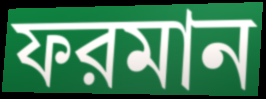
ফরমান